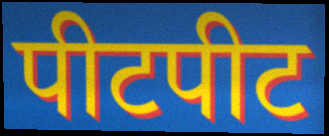
पीटपीट